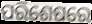
ପରିଶେଷରେ